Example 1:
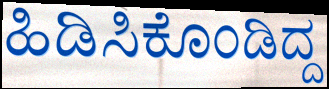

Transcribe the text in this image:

ಹಿಡಿಸಿಕೊಂಡಿದ್ದ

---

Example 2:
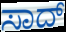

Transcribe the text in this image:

ಸಾದ್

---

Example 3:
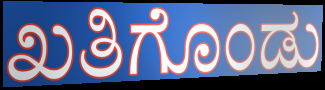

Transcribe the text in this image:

ಖತಿಗೊಂಡು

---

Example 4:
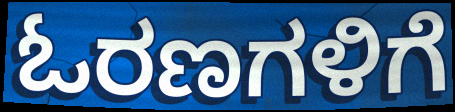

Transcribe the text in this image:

ಓರಣಗಳಿಗೆ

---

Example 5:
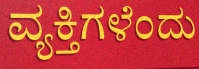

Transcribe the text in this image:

ವ್ಯಕ್ತಿಗಳೆಂದು